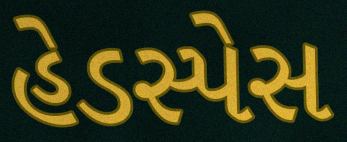
હેડસ્પેસ